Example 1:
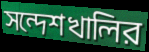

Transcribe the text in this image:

সন্দেশখালির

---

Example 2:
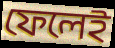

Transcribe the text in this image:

ফেলেই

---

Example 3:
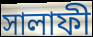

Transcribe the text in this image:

সালাফী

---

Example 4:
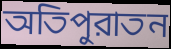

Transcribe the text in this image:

অতিপুরাতন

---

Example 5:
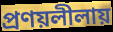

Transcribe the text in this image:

প্রণয়লীলায়